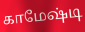
காமேஷ்டி